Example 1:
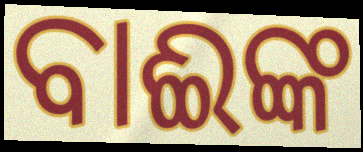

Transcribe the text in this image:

ବାଈଙ୍କ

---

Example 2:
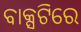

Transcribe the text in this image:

ବାକ୍ସଟିରେ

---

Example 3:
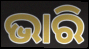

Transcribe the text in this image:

ଭାରି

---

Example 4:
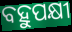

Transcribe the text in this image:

ବହୁପକ୍ଷୀ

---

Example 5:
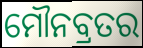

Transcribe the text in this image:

ମୌନବ୍ରତର